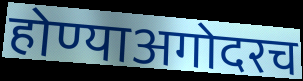
होण्याअगोदरच